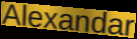
Alexandar